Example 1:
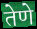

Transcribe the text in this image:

तेणे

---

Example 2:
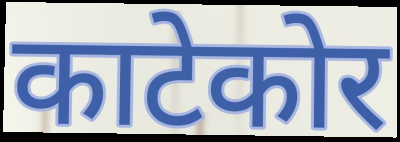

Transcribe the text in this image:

काटेकोर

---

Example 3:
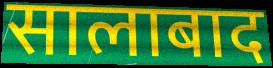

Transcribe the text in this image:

सालाबाद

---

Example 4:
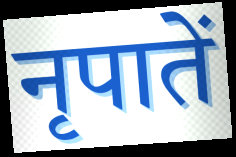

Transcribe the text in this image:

नृपातें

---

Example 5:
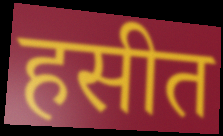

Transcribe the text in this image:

हसीत